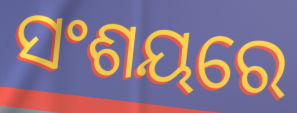
ସଂଶୟରେ